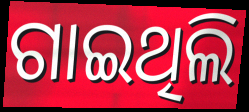
ଗାଇଥିଲି